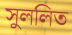
সুললিত